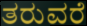
ತರುವರೆ